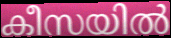
കീസയിൽ